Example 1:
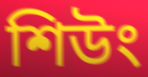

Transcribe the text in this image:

শিউং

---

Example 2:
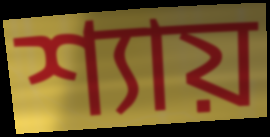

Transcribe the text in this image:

শ্যায়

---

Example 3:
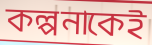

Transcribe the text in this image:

কল্পনাকেই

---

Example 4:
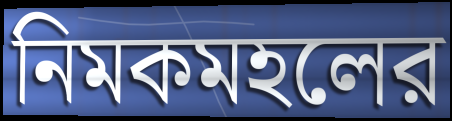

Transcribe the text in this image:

নিমকমহলের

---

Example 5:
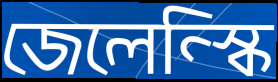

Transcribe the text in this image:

জেলেন্স্কি